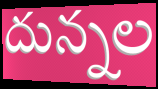
దున్నల